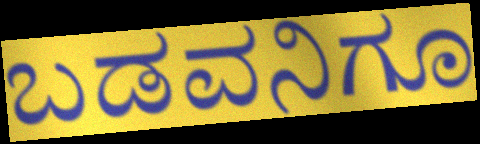
ಬಡವನಿಗೂ